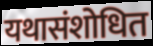
यथासंशोधित